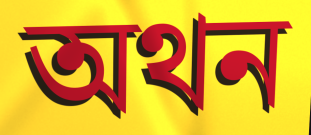
অথন